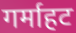
गर्माहट